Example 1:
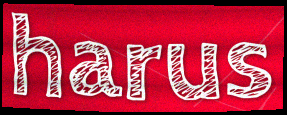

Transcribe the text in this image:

harus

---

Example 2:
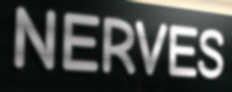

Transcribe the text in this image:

NERVES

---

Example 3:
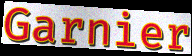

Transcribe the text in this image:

Garnier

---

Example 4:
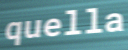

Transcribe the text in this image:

quella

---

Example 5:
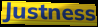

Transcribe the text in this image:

Justness